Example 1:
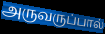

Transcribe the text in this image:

அருவருப்பால்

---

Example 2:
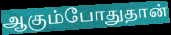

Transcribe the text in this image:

ஆகும்போதுதான்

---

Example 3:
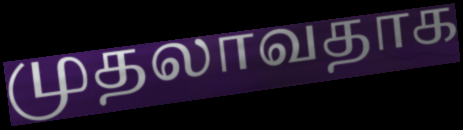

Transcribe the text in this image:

முதலாவதாக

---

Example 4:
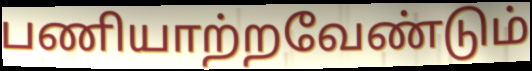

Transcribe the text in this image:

பணியாற்றவேண்டும்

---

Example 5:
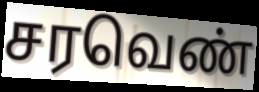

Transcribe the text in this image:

சரவெண்